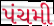
પંચમી